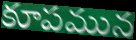
కూపమున